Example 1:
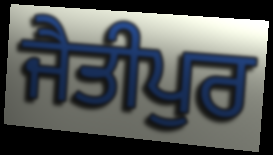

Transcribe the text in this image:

ਜੈਤੀਪੁਰ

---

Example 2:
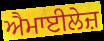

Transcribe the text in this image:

ਐਮਾਈਲੇਜ਼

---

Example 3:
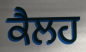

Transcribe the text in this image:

ਕੈਲਹ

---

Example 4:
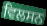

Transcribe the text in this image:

ਵਿਲਸਨ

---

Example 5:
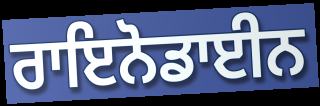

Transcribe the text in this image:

ਰਾਇਨੋਡਾਈਨ